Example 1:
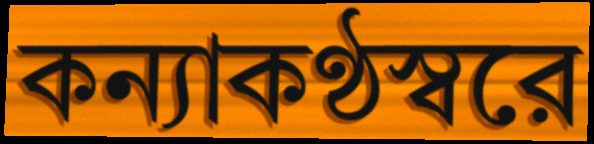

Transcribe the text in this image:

কন্যাকণ্ঠস্বরে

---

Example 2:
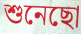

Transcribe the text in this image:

শুনেছো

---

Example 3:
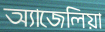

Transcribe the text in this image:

অ্যাজেলিয়া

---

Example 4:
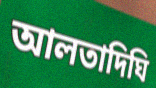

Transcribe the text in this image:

আলতাদিঘি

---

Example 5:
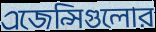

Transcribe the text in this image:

এজেন্সিগুলোর